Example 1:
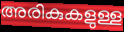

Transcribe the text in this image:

അരികുകളുള്ള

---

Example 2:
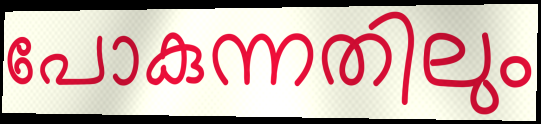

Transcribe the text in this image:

പോകുന്നതിലും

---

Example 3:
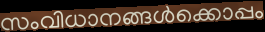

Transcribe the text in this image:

സംവിധാനങ്ങൾക്കൊപ്പം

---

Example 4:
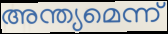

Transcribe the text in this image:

അന്ത്യമെന്ന്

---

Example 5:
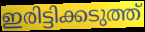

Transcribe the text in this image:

ഇരിട്ടിക്കടുത്ത്